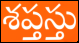
శప్తస్తు